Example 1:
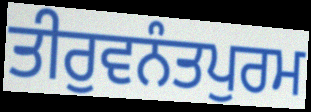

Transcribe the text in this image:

ਤੀਰੁਵਨੰਤਪੁਰਮ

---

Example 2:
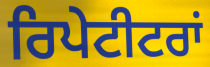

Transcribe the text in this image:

ਰਿਪੇਟੀਟਰਾਂ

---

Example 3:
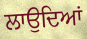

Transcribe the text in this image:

ਲਾਉਦਿਆਂ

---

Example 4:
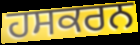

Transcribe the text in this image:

ਹਸਕਰਨ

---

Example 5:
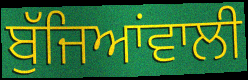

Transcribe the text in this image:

ਬੁੱਜਿਆਂਵਾਲੀ